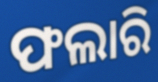
ଫଲାରି